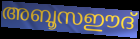
അബൂസഈദ്